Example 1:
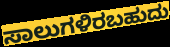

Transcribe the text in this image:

ಸಾಲುಗಳಿರಬಹುದು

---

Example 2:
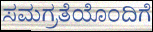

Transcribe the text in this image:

ಸಮಗ್ರತೆಯೊಂದಿಗೆ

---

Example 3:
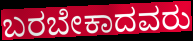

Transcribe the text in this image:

ಬರಬೇಕಾದವರು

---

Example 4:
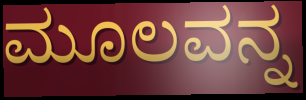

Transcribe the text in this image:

ಮೂಲವನ್ನ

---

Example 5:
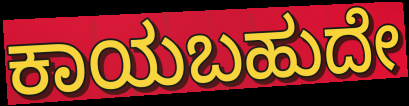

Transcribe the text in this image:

ಕಾಯಬಹುದೇ